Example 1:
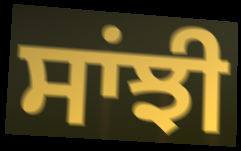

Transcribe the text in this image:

ਸਾਂਝੀ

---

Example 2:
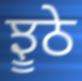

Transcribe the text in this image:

ਝੂਠੇ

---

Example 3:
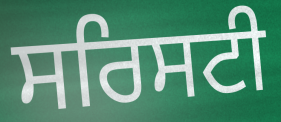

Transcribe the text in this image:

ਸਰਿਸਟੀ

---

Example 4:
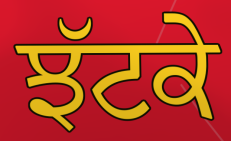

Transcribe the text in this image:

ਝੱਟਕੇ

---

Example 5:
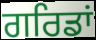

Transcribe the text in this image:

ਗਰਿਡਾਂ